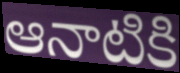
ఆనాటికి